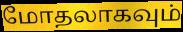
மோதலாகவும்